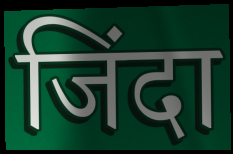
जिंदा